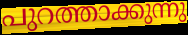
പുറത്താക്കുന്നു